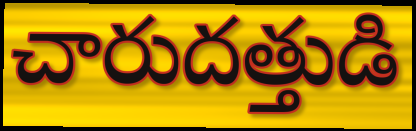
చారుదత్తుడి